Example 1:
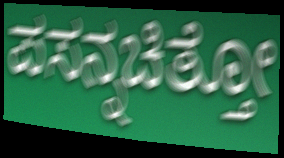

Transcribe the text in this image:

ಪಸನ್ನಚಿತ್ತೋ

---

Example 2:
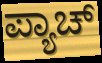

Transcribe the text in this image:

ಪ್ಯಾಚ್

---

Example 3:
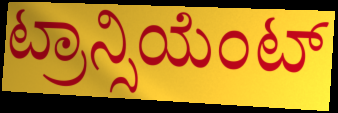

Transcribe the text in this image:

ಟ್ರಾನ್ಸಿಯೆಂಟ್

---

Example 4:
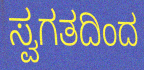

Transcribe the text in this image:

ಸ್ವಗತದಿಂದ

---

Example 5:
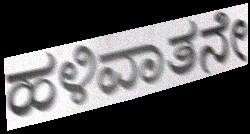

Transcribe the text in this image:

ಹಳಿವಾತನೇ